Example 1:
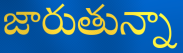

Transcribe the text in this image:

జారుతున్నా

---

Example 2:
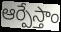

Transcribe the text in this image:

ఆర్పేస్తాం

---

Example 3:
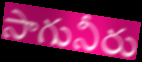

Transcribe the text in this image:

సాగునీరు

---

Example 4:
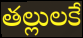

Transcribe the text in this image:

తల్లులకే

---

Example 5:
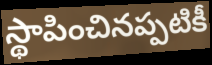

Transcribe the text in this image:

స్థాపించినప్పటికీ